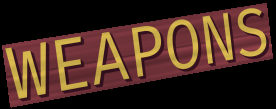
WEAPONS